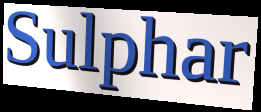
Sulphar